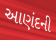
આણંદની